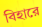
বিহারে